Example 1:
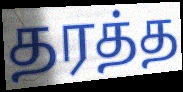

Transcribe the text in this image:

தரத்த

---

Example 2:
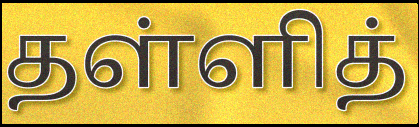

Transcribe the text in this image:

தள்ளித்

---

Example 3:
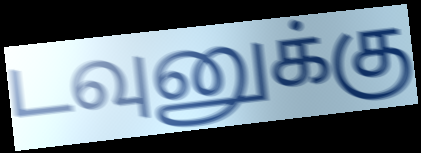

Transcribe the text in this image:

டவுனுக்கு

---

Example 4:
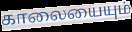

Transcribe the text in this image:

காலையையும்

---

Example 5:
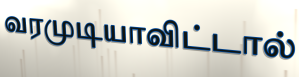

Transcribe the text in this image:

வரமுடியாவிட்டால்